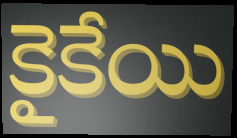
కైకేయి